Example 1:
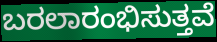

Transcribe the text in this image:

ಬರಲಾರಂಭಿಸುತ್ತವೆ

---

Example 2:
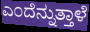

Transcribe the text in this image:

ಎಂದೆನ್ನುತ್ತಾಳೆ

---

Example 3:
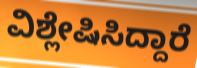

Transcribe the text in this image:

ವಿಶ್ಲೇಷಿಸಿದ್ದಾರೆ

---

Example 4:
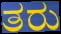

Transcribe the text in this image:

ತರು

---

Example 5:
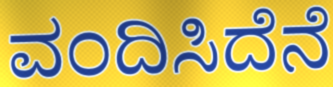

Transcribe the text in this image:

ವಂದಿಸಿದೆನೆ